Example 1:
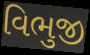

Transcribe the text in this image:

વિભુજી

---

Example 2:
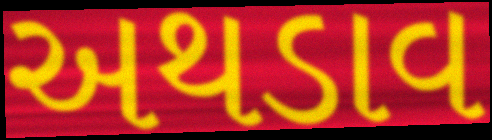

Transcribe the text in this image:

અથડાવ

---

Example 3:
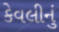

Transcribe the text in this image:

કેવલીનું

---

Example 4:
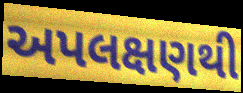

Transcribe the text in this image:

અપલક્ષણથી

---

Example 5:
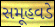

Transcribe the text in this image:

સમૂહવડે